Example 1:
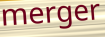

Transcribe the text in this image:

merger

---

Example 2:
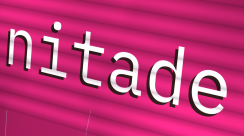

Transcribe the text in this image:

nitade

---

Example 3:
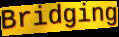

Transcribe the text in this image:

Bridging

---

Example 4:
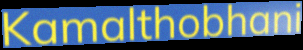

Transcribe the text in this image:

Kamalthobhani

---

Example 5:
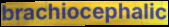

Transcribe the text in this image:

brachiocephalic